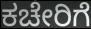
ಕಚೇರಿಗೆ